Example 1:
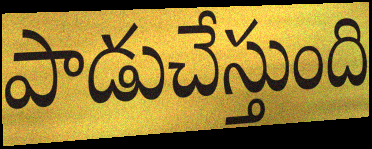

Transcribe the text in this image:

పాడుచేస్తుంది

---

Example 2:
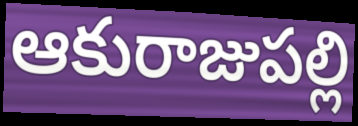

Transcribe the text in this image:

ఆకురాజుపల్లి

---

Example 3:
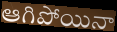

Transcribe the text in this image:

ఆగిపోయినా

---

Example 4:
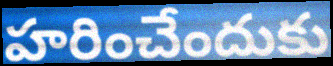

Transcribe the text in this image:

హరించేందుకు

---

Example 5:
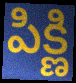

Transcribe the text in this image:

పిక్ణి